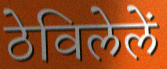
ठेविलेलें